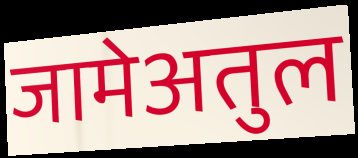
जामेअतुल